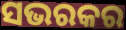
ସଭରକର